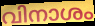
വിനാശം